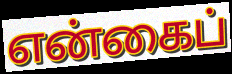
என்கைப்